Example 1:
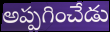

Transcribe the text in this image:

అప్పగించేడు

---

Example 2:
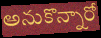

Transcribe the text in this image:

అనుకొన్నారో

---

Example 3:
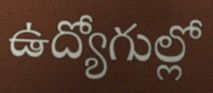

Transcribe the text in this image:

ఉద్యోగుల్లో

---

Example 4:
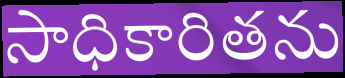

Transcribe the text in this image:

సాధికారితను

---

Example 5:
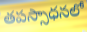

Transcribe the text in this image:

తపస్సాధనలో